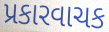
પ્રકારવાચક